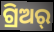
ଗ୍ରିଅର୍